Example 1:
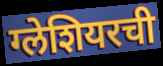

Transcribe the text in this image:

ग्लेशियरची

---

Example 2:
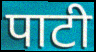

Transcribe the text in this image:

पाटी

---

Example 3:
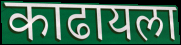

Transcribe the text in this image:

काढायला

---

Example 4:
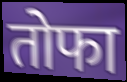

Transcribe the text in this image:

तोफा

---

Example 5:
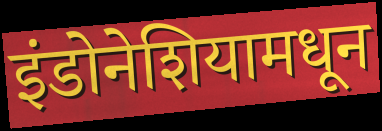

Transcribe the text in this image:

इंडोनेशियामधून